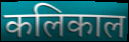
कलिकाल